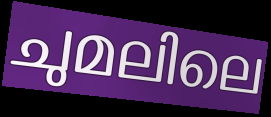
ചുമലിലെ